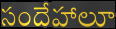
సందేహాలూ